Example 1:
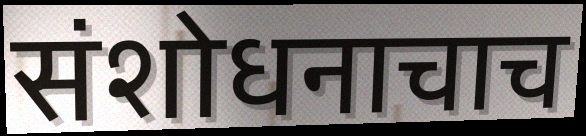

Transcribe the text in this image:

संशोधनाचाच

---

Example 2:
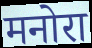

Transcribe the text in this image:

मनोरा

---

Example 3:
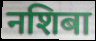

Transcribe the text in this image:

नशिबा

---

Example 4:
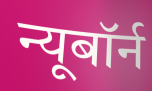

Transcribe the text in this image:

न्यूबॉर्न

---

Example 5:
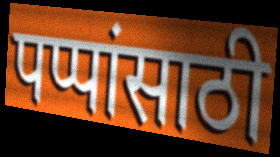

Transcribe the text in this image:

पप्पांसाठी